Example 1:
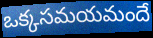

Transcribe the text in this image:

ఒక్కసమయమందే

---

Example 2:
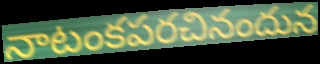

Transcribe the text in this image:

నాటంకపరచినందున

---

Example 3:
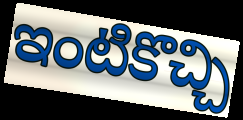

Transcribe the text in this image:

ఇంటికొచ్చి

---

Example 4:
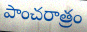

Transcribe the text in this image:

పాంచరాత్రం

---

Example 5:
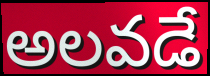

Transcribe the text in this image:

అలవడే